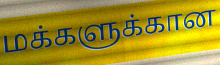
மக்களுக்கான